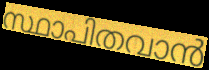
സ്ഥാപിതവാൻ